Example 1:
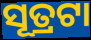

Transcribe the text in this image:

ସୂତ୍ରଟା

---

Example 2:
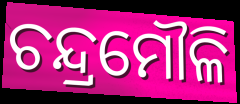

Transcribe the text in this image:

ଚନ୍ଦ୍ରମୌଳି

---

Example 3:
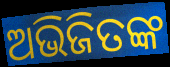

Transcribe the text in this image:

ଅଭିଜିତଙ୍କ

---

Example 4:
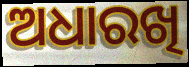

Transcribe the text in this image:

ଅଧାରଖି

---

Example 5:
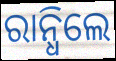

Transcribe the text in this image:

ରାନ୍ଧିଲେ